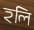
হলি